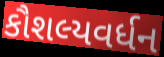
કૌશલ્યવર્ધન